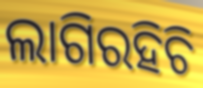
ଲାଗିରହିଚି